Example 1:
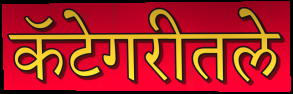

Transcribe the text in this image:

कॅटेगरीतले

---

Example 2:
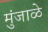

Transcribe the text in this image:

मुंजाळे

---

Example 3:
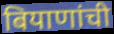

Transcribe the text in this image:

बियाणांची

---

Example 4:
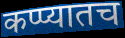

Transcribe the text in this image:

कप्प्यातच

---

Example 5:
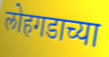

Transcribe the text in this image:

लोहगडाच्या